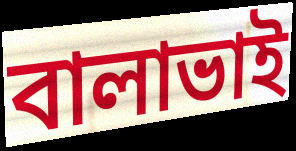
বালাভাই